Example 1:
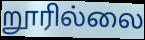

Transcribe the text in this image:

றூரில்லை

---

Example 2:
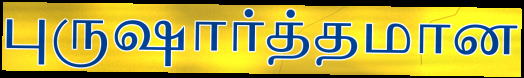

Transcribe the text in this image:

புருஷார்த்தமான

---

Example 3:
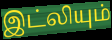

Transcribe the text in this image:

இட்லியும்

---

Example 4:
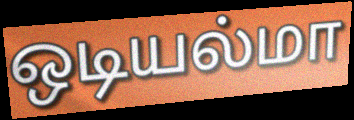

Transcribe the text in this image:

ஒடியல்மா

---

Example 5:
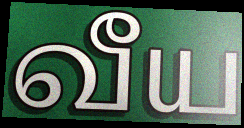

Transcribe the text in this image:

வீய